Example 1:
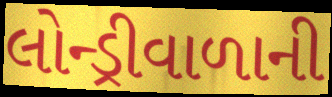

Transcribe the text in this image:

લોન્ડ્રીવાળાની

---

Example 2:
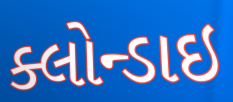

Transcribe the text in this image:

ક્લોન્ડાઇ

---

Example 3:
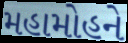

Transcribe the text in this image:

મહામોહને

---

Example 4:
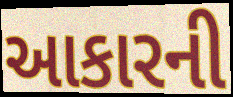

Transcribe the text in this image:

આકારની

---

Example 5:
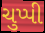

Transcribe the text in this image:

ચુપ્પી